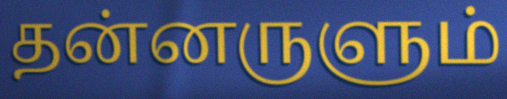
தன்னருளும்